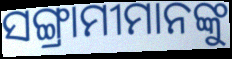
ସଙ୍ଗ୍ରାମୀମାନଙ୍କୁ